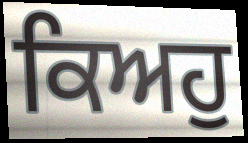
ਕਿਅਹੁ